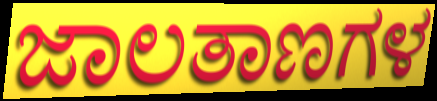
ಜಾಲತಾಣಗಳ